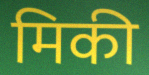
मिकी